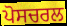
ਪੋਸਚਰਲ